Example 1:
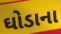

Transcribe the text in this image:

ઘોડાના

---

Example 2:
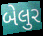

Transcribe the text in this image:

બેલુર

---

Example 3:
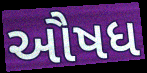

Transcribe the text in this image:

ઔષધ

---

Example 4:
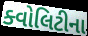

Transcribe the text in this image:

ક્વોલિટીના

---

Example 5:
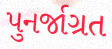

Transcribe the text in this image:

પુનર્જાગ્રત